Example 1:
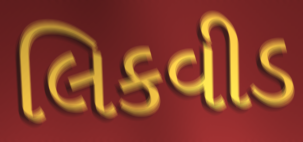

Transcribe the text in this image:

લિકવીડ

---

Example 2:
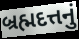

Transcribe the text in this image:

બ્રહ્મદત્તનું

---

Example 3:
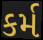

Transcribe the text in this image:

કર્મ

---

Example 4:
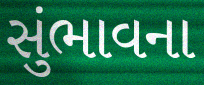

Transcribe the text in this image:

સુંભાવના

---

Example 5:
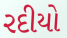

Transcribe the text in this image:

રદીયો